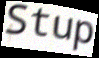
Stup